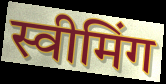
स्‍वीमिंग